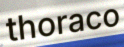
thoraco